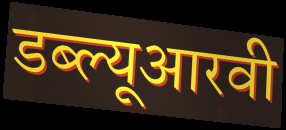
डब्ल्यूआरवी